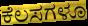
ಕೆಲಸಗಳೂ